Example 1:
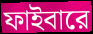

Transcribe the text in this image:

ফাইবারে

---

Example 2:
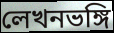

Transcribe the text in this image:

লেখনভঙ্গি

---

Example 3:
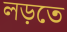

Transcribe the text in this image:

লড়তে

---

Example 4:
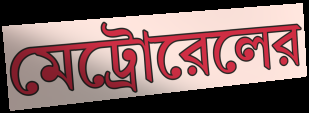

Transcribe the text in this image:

মেট্রোরেলের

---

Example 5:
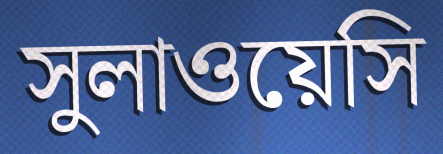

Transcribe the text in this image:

সুলাওয়েসি